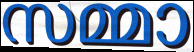
സമ്മാ